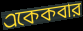
একেকবার